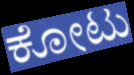
ಕೋಟು